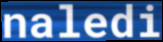
naledi